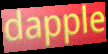
dapple